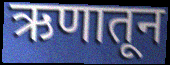
ऋणातून